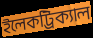
ইলেকট্রিক্যাল